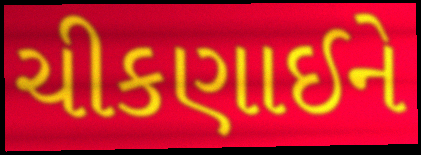
ચીકણાઈને